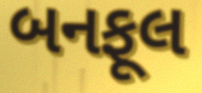
બનફૂલ